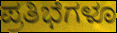
ಪ್ರತಿಭೆಗಳೂ